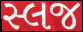
સ્લજ